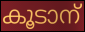
കൂടാന്